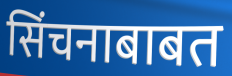
सिंचनाबाबत